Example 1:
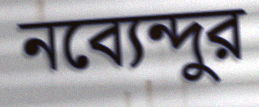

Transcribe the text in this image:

নব্যেন্দুর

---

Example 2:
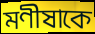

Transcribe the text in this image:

মণীষাকে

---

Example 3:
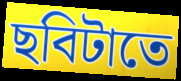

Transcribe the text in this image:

ছবিটাতে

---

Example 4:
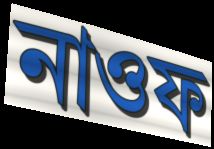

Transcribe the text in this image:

নাওফ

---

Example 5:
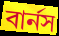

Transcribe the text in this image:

বার্নস